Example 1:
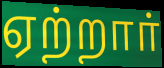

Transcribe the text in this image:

ஏற்றார்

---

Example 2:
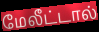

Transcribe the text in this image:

மேலீட்டால்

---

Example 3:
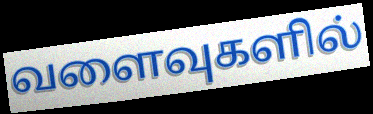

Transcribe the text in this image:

வளைவுகளில்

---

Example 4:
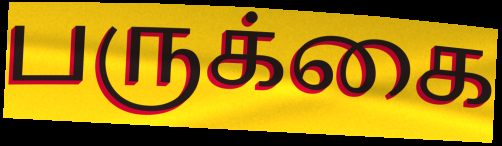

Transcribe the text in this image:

பருக்கை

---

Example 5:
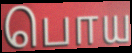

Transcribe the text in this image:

பொய